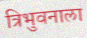
त्रिभुवनाला